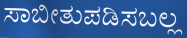
ಸಾಬೀತುಪಡಿಸಬಲ್ಲ